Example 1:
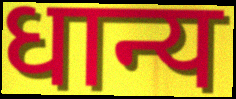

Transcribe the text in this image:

धान्य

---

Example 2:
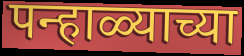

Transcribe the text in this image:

पन्हाळ्याच्या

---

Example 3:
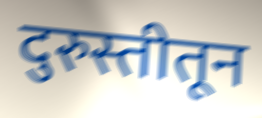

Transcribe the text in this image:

दुरुस्तीतून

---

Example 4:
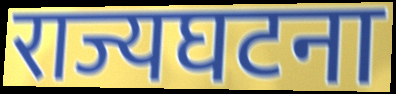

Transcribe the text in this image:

राज्यघटना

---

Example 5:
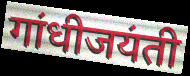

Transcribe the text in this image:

गांधीजयंती